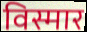
विस्मार